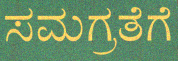
ಸಮಗ್ರತೆಗೆ